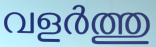
വളർത്തു